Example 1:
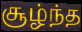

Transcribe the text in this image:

சூழ்ந்த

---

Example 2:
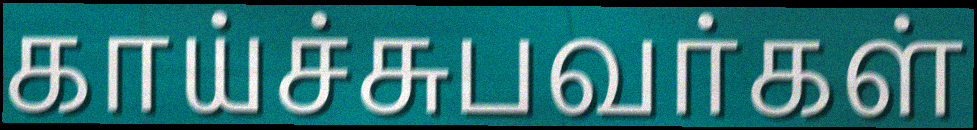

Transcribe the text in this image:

காய்ச்சுபவர்கள்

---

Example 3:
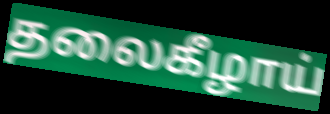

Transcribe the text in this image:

தலைகீழாய்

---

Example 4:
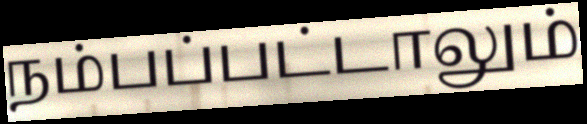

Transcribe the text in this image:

நம்பப்பட்டாலும்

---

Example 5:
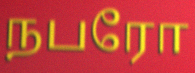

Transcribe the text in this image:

நபரோ